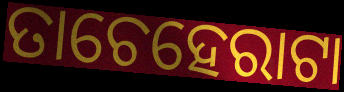
ତାଚେହେରାଟା